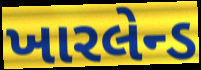
ખારલેન્ડ